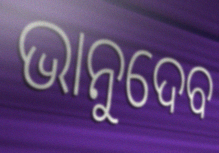
ଭାନୁଦେବ